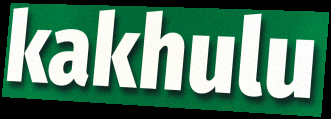
kakhulu